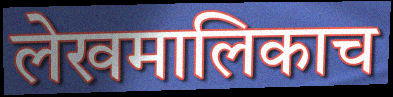
लेखमालिकाच